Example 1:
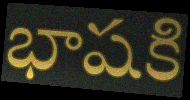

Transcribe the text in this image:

భాషకి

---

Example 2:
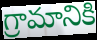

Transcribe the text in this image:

గ్రామానికి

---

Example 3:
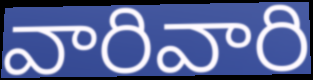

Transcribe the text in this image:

వారివారి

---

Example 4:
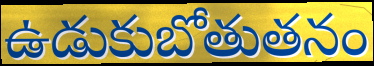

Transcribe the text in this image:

ఉడుకుబోతుతనం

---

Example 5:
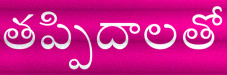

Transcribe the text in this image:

తప్పిదాలతో